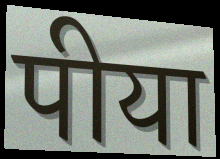
पीया